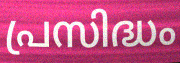
പ്രസിദ്ധം